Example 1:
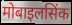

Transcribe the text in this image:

मोबाइलसिंक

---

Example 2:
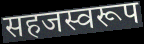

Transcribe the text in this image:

सहजस्वरूप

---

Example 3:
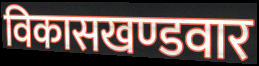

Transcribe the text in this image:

विकासखण्‍डवार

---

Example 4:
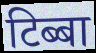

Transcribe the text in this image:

टिब्बा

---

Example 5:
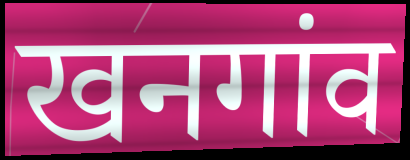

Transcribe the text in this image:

खनगांव